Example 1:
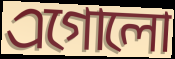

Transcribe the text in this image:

এগোলো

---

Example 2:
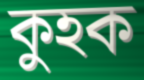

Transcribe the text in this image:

কুহক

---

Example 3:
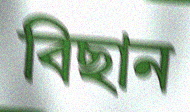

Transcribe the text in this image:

বিছান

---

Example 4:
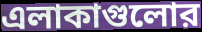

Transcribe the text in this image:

এলাকাগুলোর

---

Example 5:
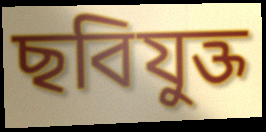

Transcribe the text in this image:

ছবিযুক্ত